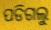
ପଡିଗଲୁ